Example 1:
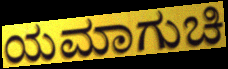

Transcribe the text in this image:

ಯಮಾಗುಚಿ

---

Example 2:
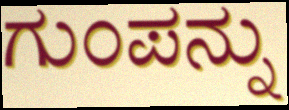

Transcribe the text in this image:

ಗುಂಪನ್ನು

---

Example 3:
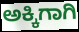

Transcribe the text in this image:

ಅಕ್ಕಿಗಾಗಿ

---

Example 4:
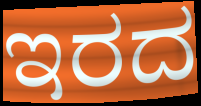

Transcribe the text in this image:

ಇರದ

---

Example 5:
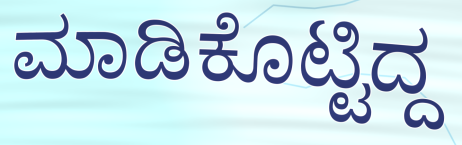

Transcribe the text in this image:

ಮಾಡಿಕೊಟ್ಟಿದ್ದ